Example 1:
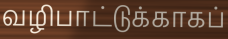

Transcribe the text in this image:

வழிபாட்டுக்காகப்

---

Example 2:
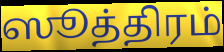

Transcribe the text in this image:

ஸூத்திரம்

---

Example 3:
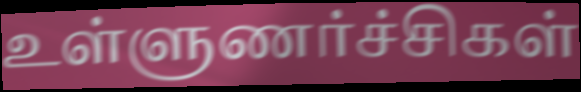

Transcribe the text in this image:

உள்ளுணர்ச்சிகள்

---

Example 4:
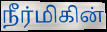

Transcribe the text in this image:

நீர்மிகின்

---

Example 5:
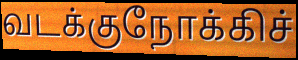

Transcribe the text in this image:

வடக்குநோக்கிச்